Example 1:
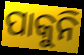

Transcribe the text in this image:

ପାକୁନି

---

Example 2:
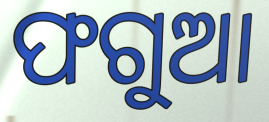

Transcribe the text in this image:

ଫଗୁଆ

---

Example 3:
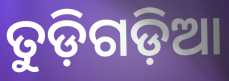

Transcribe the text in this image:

ତୁଡ଼ିଗଡ଼ିଆ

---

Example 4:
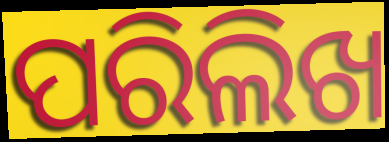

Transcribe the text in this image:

ପରିଲିଖ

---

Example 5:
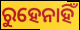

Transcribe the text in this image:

ରୁହେନାହିଁ